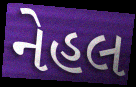
નેહલ